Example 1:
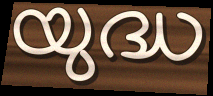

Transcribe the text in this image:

യുദ്ധ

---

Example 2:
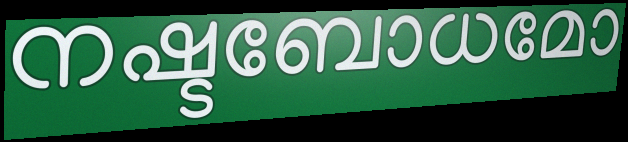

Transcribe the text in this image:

നഷ്ടബോധമോ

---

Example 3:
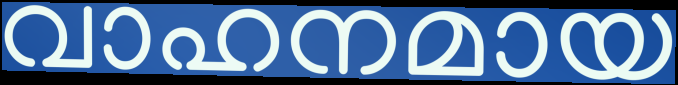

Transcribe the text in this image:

വാഹനമായ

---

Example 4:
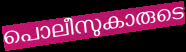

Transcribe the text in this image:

പൊലീസുകാരുടെ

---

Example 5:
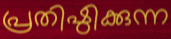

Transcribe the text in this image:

പ്രതിഷ്ഠിക്കുന്ന